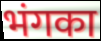
भंगका